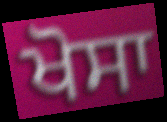
ਖੋਸਾ